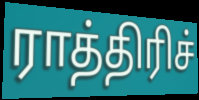
ராத்திரிச்